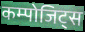
कम्पोजिट्स